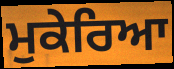
ਮੁਕੇਰਿਆ